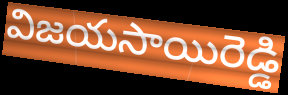
విజయసాయిరెడ్డి